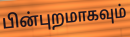
பின்புறமாகவும்